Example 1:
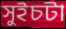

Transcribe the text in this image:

সুইচটা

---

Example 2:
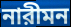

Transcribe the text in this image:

নারীমন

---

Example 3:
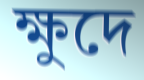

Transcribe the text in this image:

ক্ষুদে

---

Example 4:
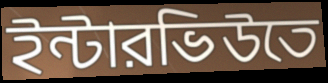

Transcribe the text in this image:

ইন্টারভিউতে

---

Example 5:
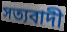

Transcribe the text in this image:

সত্যবাদী